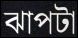
ঝাপটা